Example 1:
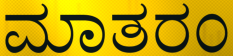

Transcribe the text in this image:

ಮಾತರಂ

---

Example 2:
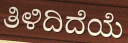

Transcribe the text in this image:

ತಿಳಿದಿದೆಯೆ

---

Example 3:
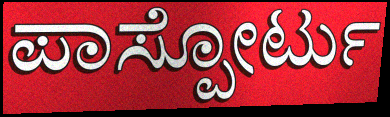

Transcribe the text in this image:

ಪಾಸ್ಪೋರ್ಟು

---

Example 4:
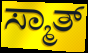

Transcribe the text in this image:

ಸ್ಮಾತ್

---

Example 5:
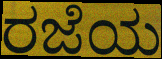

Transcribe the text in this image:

ರಜೆಯ